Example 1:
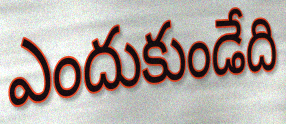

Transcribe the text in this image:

ఎందుకుండేది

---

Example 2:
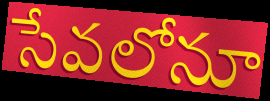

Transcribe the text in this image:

సేవలోనూ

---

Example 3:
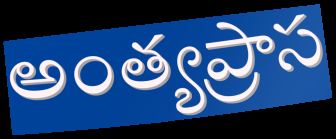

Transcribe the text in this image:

అంత్యప్రాస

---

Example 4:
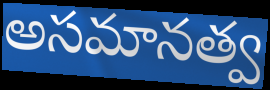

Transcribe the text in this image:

అసమానత్వ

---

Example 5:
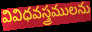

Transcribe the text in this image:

వివిధవస్త్రములను